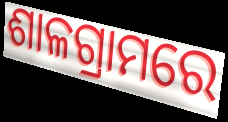
ଶାଳଗ୍ରାମରେ